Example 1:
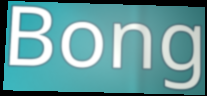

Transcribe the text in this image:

Bong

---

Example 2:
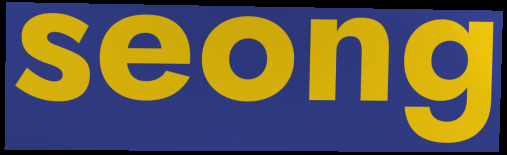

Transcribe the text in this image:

seong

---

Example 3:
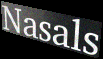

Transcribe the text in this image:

Nasals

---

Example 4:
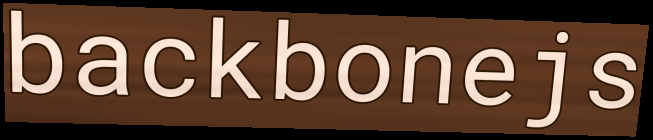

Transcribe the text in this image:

backbonejs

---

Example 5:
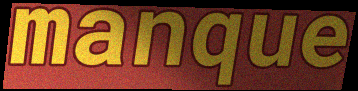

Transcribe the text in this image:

manque